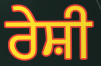
ਰੇਸ਼ੀ